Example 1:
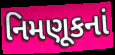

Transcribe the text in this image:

નિમણૂકનાં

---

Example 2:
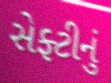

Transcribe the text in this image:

સેફ્ટીનું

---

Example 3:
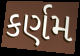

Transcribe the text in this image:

કર્ણમ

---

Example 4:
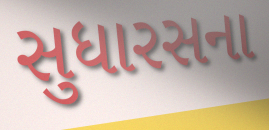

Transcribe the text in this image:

સુધારસના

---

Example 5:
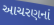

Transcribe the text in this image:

આચરણનાં